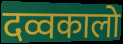
दव्वकालो